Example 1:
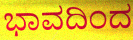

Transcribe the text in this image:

ಭಾವದಿಂದ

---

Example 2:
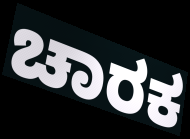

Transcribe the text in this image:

ಚಾರಕ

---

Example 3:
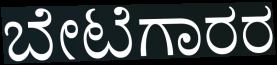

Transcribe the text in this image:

ಬೇಟೆಗಾರರ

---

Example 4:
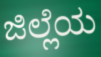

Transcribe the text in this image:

ಜಿಲ್ಲೆಯ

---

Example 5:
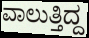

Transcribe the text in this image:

ವಾಲುತ್ತಿದ್ದ